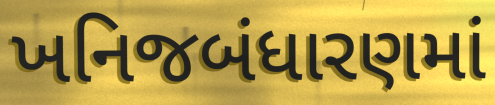
ખનિજબંધારણમાં